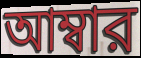
আম্বার